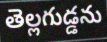
తెల్లగుడ్డను